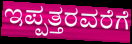
ಇಪ್ಪತ್ತರವರೆಗೆ